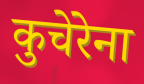
कुचेरेना